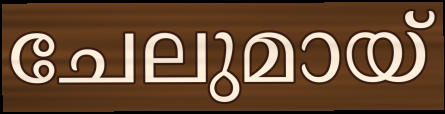
ചേലുമായ്